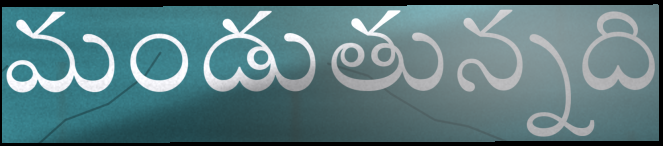
మండుతున్నది